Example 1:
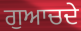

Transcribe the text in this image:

ਗੁਆਚਦੇ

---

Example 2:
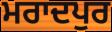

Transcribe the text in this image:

ਮਰਾਦਪੁਰ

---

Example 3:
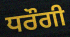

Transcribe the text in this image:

ਧਰੌਗੀ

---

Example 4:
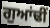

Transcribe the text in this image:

ਗੁਆਂਢੀਂ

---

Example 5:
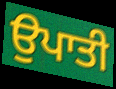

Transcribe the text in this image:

ਉਪਾਤੀ